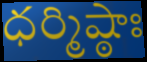
ధర్మిష్ఠాః